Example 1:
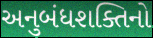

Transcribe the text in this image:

અનુબંધશક્તિનો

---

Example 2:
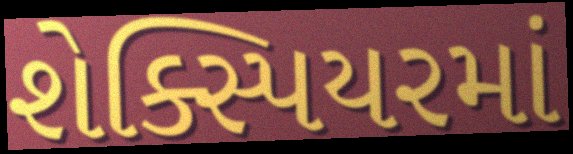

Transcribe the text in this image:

શેક્સ્પિયરમાં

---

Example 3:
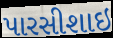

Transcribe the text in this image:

પારસીશાઇ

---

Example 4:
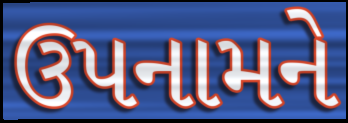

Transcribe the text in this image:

ઉપનામને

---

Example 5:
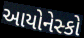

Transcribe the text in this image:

આયોનેસ્કો